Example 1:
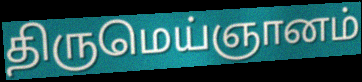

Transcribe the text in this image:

திருமெய்ஞானம்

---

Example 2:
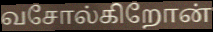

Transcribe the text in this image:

வசோல்கிறோன்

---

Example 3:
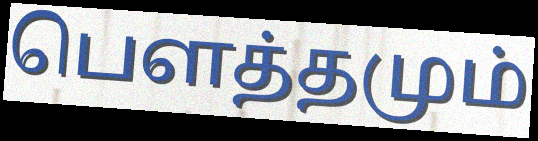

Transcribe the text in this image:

பௌத்தமும்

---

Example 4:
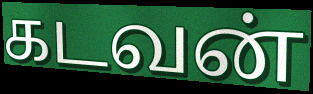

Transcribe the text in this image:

கடவன்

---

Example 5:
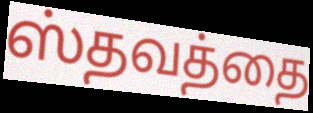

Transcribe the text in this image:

ஸ்தவத்தை